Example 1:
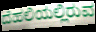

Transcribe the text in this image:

ದೆಹಲಿಯಲ್ಲಿರುವ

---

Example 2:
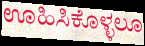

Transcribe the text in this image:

ಊಹಿಸಿಕೊಳ್ಳಲೂ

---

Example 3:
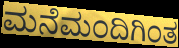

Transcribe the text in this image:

ಮನೆಮಂದಿಗಿಂತ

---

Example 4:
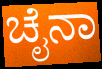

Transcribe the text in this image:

ಚೈನಾ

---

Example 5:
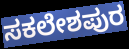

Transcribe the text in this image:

ಸಕಲೇಶಪುರ